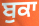
ਬੁਕਾ